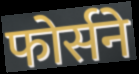
फोर्सने